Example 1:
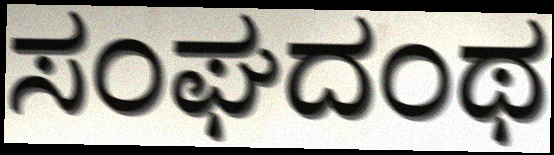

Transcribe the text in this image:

ಸಂಘದಂಥ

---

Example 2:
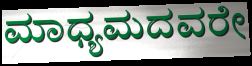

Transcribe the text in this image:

ಮಾಧ್ಯಮದವರೇ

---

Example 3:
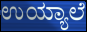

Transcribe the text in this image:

ಉಯ್ಯಾಲೆ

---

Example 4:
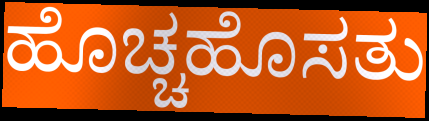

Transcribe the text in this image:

ಹೊಚ್ಚಹೊಸತು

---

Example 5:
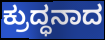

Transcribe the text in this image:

ಕ್ರುದ್ಧನಾದ